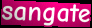
sangate